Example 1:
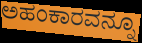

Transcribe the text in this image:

ಅಹಂಕಾರವನ್ನೂ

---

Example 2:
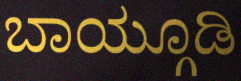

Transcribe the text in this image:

ಬಾಯ್ಗೂಡಿ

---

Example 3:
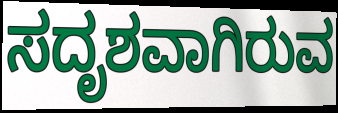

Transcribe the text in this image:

ಸದೃಶವಾಗಿರುವ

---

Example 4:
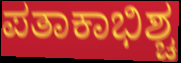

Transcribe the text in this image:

ಪತಾಕಾಭಿಶ್ಚ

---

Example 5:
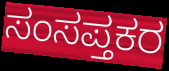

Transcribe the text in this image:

ಸಂಸಪ್ತಕರ